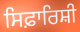
ਸਿਫ਼ਾਰਿਸ਼ੀ